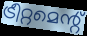
ട്രീറ്റമെന്റ്